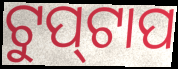
ଟୁପ୍‌ଟାପ